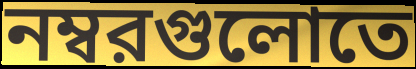
নম্বরগুলোতে